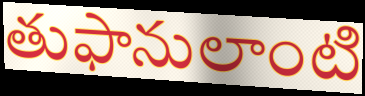
తుఫానులాంటి